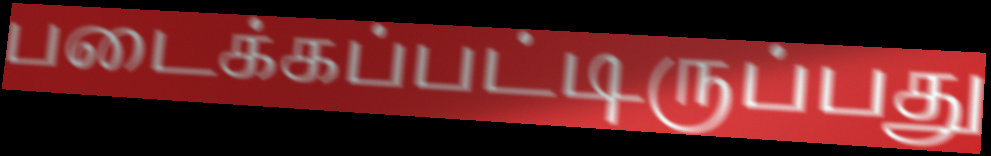
படைக்கப்பட்டிருப்பது